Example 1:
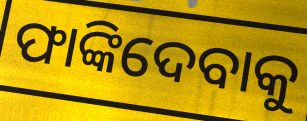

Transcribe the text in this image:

ଫାଙ୍କିଦେବାକୁ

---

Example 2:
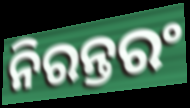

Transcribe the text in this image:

ନିରନ୍ତରଂ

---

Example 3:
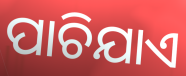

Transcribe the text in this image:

ପାଚିଯାଏ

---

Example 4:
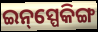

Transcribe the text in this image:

ଇନ୍‌ସ୍ପେକିଙ୍ଗ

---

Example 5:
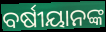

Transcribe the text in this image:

ବର୍ଷୀୟାନଙ୍କ